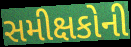
સમીક્ષકોની